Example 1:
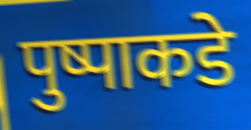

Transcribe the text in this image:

पुष्पाकडे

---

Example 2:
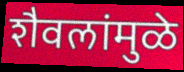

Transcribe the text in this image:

शैवलांमुळे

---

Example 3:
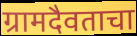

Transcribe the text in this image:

ग्रामदैवताचा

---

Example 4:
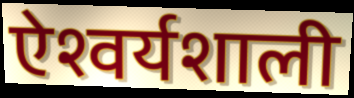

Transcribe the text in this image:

ऐश्वर्यशाली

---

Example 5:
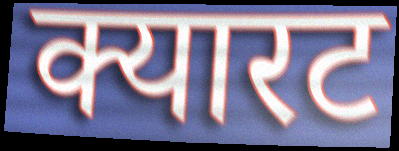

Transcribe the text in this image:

क्यारट